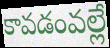
కావడంవల్లే